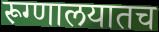
रूग्णालयातच